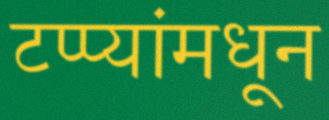
टप्प्यांमधून